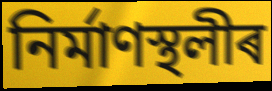
নিৰ্মাণস্থলীৰ